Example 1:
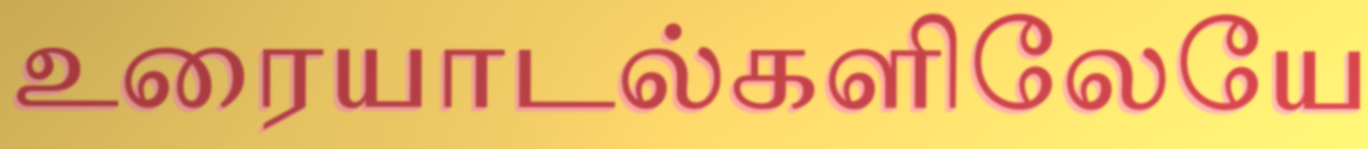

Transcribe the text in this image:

உரையாடல்களிலேயே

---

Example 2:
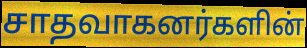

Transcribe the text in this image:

சாதவாகனர்களின்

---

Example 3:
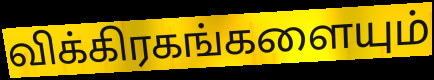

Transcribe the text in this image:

விக்கிரகங்களையும்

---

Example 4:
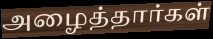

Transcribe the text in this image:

அழைத்தார்கள்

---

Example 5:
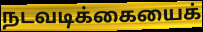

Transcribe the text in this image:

நடவடிக்கையைக்